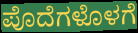
ಪೊದೆಗಳೊಳಗೆ